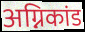
अग्निकांड